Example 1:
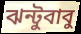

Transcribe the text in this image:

ঝন্টুবাবু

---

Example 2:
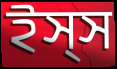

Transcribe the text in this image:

ইস্‌স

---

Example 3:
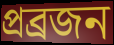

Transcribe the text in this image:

প্রব্রজন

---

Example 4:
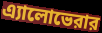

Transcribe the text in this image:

এ্যালোভেরার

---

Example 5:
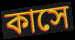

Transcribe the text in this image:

কাসে